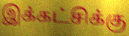
இக்கட்சிக்கு